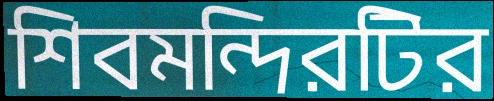
শিবমন্দিরটির